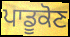
ਪਾਡੂਕੋਣ